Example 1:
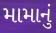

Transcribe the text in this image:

મામાનું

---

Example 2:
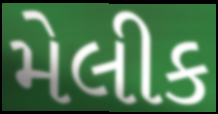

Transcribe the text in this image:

મેલીક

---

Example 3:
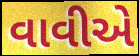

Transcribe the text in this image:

વાવીએ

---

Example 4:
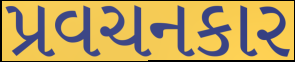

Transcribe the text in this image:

પ્રવચનકાર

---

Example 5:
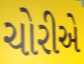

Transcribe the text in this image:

ચોરીએ